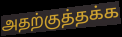
அதற்குத்தக்க